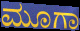
ಮೂಗಾ